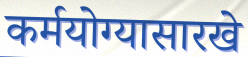
कर्मयोग्यासारखे